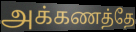
அக்கணத்தே